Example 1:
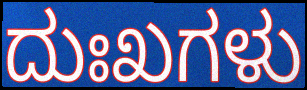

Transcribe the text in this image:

ದುಃಖಗಳು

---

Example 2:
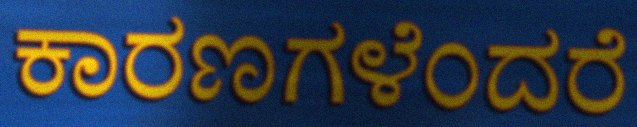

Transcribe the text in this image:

ಕಾರಣಗಳೆಂದರೆ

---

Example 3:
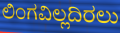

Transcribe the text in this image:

ಲಿಂಗವಿಲ್ಲದಿರಲು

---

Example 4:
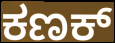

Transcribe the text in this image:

ಕಣಕ್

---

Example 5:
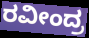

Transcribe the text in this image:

ರವೀಂದ್ರ